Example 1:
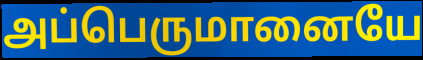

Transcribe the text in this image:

அப்பெருமானையே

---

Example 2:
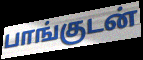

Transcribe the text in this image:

பாங்குடன்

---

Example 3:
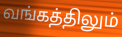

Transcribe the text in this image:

வங்கத்திலும்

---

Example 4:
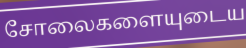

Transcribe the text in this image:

சோலைகளையுடைய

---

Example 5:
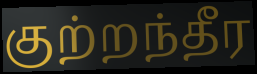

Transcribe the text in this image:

குற்றந்தீர